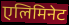
एलिमिनेट